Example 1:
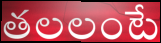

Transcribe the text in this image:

తలలంటే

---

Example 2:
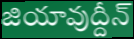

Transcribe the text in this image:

జియావుద్దీన్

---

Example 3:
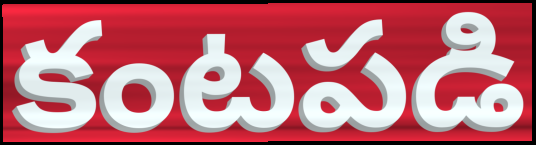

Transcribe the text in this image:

కంటపడి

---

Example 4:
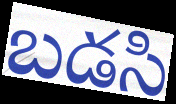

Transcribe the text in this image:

బడసి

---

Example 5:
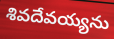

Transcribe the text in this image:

శివదేవయ్యను